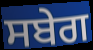
ਸਬੇਗ